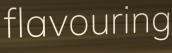
flavouring